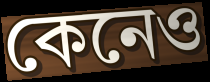
কেনেও